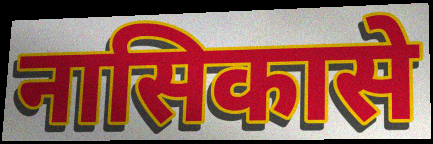
नासिकासे